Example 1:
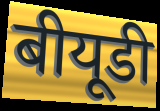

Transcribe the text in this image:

बीयूडी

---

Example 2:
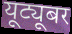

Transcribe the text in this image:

यूट्यूबर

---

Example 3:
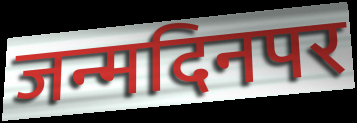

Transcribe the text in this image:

जन्मदिनपर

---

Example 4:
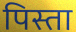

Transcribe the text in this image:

पिस्ता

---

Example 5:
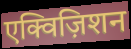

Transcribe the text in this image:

एक्विज़िशन